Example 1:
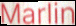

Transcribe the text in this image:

Marlin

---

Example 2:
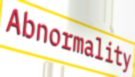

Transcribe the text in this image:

Abnormality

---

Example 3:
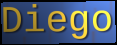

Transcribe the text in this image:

Diego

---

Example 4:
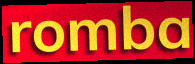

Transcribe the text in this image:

romba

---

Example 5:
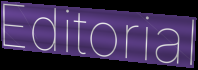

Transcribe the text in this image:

Editorial